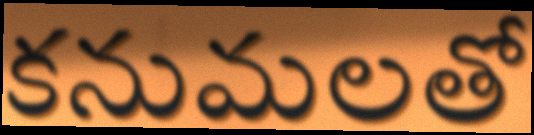
కనుమలతో